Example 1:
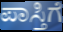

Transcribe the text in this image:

ಪಾಸ್ತಿಗೆ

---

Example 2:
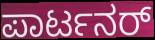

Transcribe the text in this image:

ಪಾರ್ಟನರ್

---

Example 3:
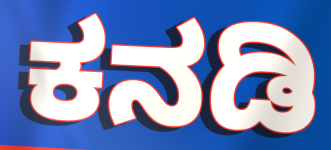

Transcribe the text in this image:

ಕನಡಿ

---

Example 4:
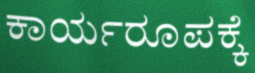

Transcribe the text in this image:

ಕಾರ್ಯರೂಪಕ್ಕೆ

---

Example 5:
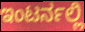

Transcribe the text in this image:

ಇಂಟರ್ನಲ್ಲಿ